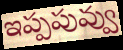
ఇప్పపువ్వు